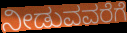
ನೀಡುವವರೆಗೆ